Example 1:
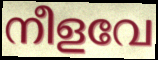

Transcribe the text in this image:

നീളവേ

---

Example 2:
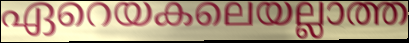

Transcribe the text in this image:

ഏറെയകലെയല്ലാത്ത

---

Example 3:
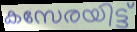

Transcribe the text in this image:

കസേരയിട്ട്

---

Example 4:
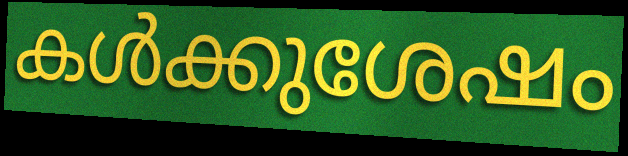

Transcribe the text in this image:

കൾക്കുശേഷം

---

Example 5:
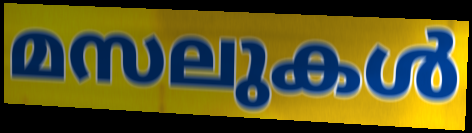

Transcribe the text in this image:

മസലുകൾ